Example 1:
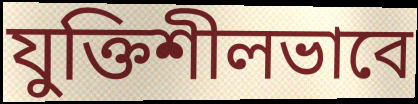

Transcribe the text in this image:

যুক্তিশীলভাবে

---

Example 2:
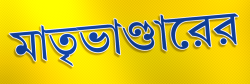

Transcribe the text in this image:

মাতৃভাণ্ডারের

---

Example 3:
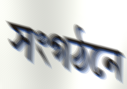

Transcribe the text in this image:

সংগঠনে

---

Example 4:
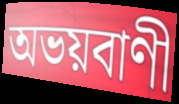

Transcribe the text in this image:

অভয়বাণী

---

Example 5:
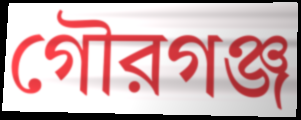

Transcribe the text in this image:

গৌরগঞ্জ